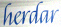
herdar